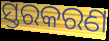
ସ୍ତରକରଣ